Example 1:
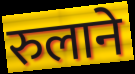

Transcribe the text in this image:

रुलाने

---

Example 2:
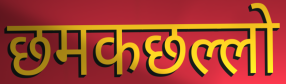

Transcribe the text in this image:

छमकछल्लो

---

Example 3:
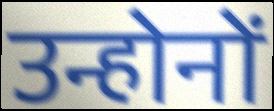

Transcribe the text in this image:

उन्होनों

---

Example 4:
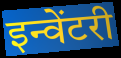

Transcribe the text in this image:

इन्वेंटरी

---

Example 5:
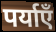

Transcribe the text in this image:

पर्याएँ